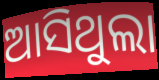
ଆସିଥୁଲା